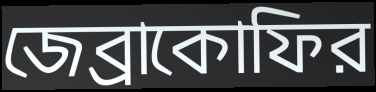
জেব্রাকোফির